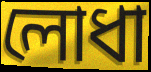
লোধা